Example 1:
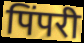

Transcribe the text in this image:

पिंपरी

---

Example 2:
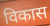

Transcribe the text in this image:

विकास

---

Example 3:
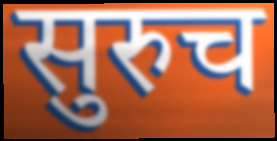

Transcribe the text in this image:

सुरुच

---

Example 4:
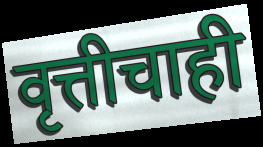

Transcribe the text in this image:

वृत्तीचाही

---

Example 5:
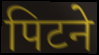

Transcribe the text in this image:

पिटने